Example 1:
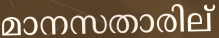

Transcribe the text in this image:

മാനസതാരില്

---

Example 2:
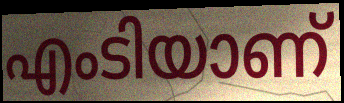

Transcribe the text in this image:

എംടിയാണ്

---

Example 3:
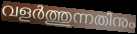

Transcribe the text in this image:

വളർത്തുന്നതിനും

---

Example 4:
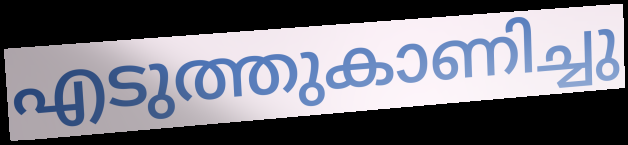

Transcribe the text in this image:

എടുത്തുകാണിച്ചു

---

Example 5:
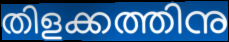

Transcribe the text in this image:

തിളക്കത്തിനു